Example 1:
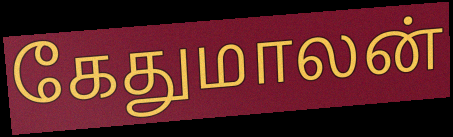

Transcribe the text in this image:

கேதுமாலன்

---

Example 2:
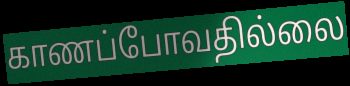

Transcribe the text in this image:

காணப்போவதில்லை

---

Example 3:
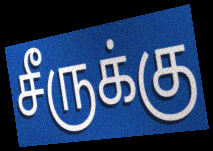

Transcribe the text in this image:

சீருக்கு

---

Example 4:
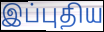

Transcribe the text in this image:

இப்புதிய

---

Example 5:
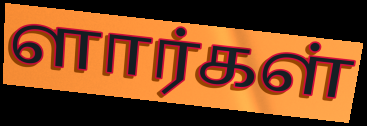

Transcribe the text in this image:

ளார்கள்